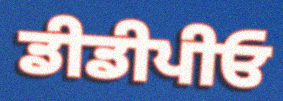
ਡੀਡੀਪੀਓ